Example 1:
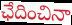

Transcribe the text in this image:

ఛేదించినా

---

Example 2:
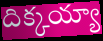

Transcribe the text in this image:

దిక్కయ్యా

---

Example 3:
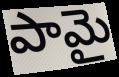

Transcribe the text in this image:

పామై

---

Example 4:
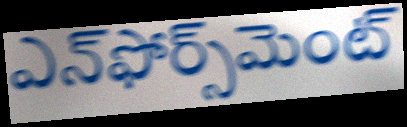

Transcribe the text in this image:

ఎన్‌ఫోర్స్‌మెంట్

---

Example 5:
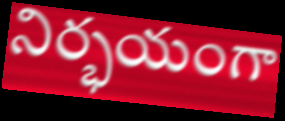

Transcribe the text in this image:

నిర్భయంగా